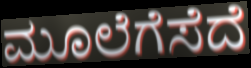
ಮೂಲೆಗೆಸೆದೆ